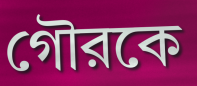
গৌরকে